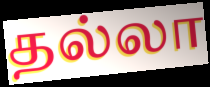
தல்லா